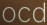
ocd